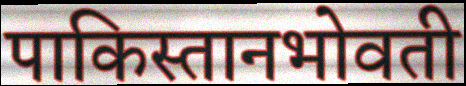
पाकिस्तानभोवती